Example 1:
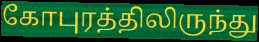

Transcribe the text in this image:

கோபுரத்திலிருந்து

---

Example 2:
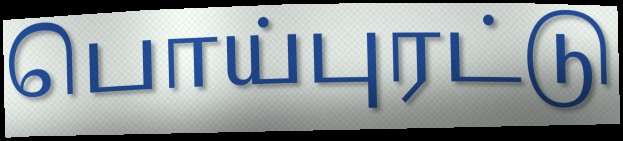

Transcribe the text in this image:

பொய்புரட்டு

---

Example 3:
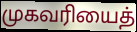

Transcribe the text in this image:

முகவரியைத்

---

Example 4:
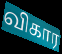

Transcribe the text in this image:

விகார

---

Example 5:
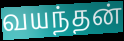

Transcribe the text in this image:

வயந்தன்